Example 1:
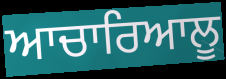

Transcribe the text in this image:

ਆਚਾਰਿਆਲੂ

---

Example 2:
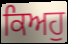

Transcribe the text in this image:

ਕਿਅਹੁ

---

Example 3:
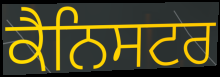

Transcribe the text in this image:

ਕੈਨਿਸਟਰ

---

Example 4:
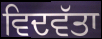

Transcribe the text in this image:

ਵਿਦਵੱਤਾ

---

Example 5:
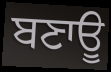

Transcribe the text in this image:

ਬਣਾਊ